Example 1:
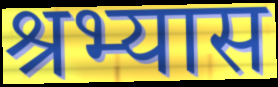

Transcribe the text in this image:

श्रभ्यास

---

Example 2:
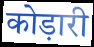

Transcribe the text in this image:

कोड़ारी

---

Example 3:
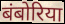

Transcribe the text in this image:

बंबोरिया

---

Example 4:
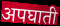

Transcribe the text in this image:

अपघाती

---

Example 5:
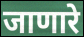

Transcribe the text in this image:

जाणारे